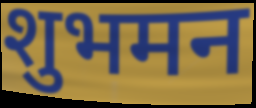
शुभमन